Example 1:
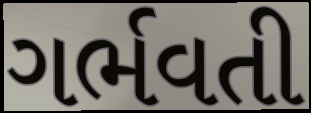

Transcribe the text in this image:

ગર્ભવતી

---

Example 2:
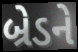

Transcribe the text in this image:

બ્રેડને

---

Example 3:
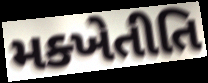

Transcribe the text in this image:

મક્ખેતીતિ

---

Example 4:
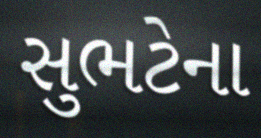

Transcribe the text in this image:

સુભટેના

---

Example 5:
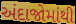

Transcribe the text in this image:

અંદાજોમાંથી